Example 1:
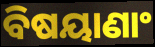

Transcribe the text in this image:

ବିଷୟାଣାଂ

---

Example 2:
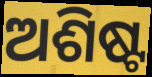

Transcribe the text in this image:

ଅଶିଷ୍ଟ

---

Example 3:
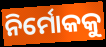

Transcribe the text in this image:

ନିର୍ମୋକକୁ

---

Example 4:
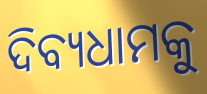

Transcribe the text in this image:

ଦିବ୍ୟଧାମକୁ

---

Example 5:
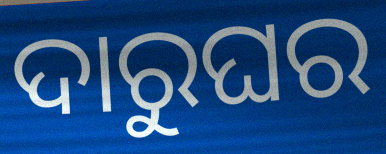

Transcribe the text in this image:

ଦାରୁଘର